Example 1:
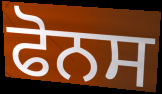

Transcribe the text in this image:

ਫੋਨਸ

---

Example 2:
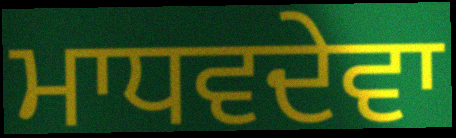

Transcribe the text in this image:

ਮਾਧਵਦੇਵਾ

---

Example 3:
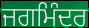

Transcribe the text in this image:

ਜਗਮਿੰਦਰ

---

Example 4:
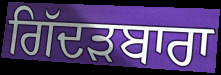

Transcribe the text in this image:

ਗਿੱਦੜਬਾਰਾ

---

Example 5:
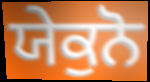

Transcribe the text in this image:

ਯੇਕੁਨੋ